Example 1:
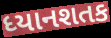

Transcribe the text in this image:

ધ્યાનશતક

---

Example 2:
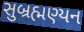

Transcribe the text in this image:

સુબ્રહ્મણ્યન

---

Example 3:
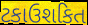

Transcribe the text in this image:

ટકાઉશકિત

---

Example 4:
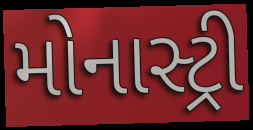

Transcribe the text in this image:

મોનાસ્ટ્રી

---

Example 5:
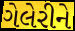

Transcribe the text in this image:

ગેલેરીને